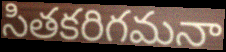
సితకరిగమనా